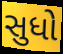
સુધો